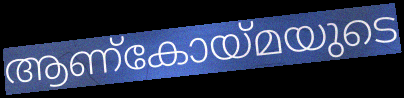
ആണ്കോയ്മയുടെ